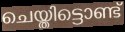
ചെയ്തിട്ടൊണ്ട്